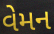
વેમન